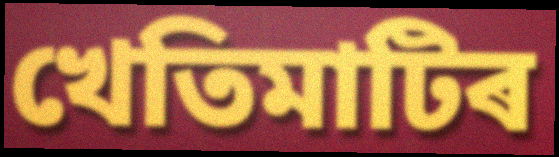
খেতিমাটিৰ